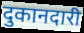
दुकानदारी